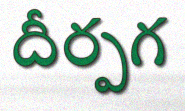
దీర్పగ